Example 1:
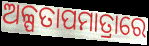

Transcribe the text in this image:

ଅଳ୍ପତାପମାତ୍ରାରେ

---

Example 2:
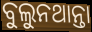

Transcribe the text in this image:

ବୁଲୁନଥାନ୍ତା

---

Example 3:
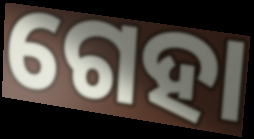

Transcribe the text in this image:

ଗେହା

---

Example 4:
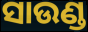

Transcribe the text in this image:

ସାଉଣ୍ଡ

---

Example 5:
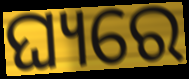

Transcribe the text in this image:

ଘ୍ୟରେ